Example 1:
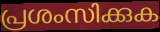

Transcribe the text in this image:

പ്രശംസിക്കുക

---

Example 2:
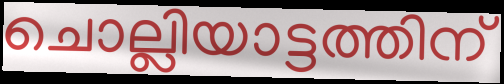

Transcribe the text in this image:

ചൊല്ലിയാട്ടത്തിന്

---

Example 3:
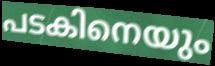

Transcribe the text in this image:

പടകിനെയും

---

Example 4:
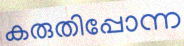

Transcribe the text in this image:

കരുതിപ്പോന്ന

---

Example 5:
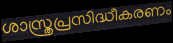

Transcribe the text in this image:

ശാസ്ത്രപ്രസിദ്ധീകരണം